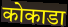
कोकाडा